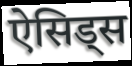
ऐसिड्स